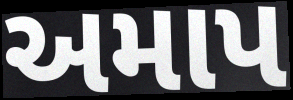
અમાપ